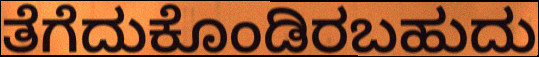
ತೆಗೆದುಕೊಂಡಿರಬಹುದು